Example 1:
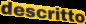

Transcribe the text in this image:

descritto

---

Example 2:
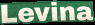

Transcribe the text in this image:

Levina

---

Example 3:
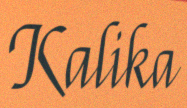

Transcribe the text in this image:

Kalika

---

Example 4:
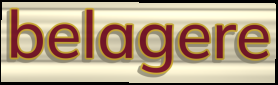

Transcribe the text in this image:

belagere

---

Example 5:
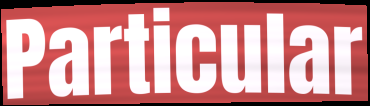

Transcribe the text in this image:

Particular